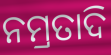
ନମ୍ରତାଦି